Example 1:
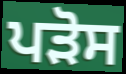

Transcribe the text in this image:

ਪੜੋਸ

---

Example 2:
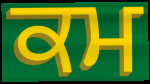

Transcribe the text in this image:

ਕਮ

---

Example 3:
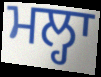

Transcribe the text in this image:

ਮਲ੍ਹਾ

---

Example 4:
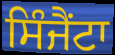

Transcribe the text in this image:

ਸਿੰਜੈਂਟਾ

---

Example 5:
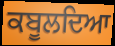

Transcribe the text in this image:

ਕਬੂਲਦਿਆ